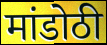
मांडोठी